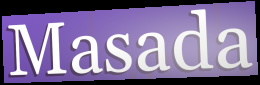
Masada